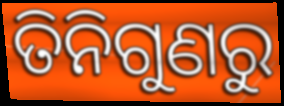
ତିନିଗୁଣରୁ